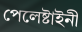
পেলেষ্টাইনী